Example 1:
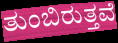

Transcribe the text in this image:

ತುಂಬಿರುತ್ತವೆ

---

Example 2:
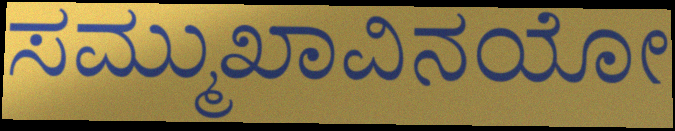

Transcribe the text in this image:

ಸಮ್ಮುಖಾವಿನಯೋ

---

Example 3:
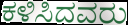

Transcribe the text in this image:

ಕಳಿಸಿದವರು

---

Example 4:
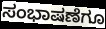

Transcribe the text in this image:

ಸಂಭಾಷಣೆಗೂ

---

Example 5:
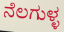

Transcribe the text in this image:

ನೆಲಗುಳ್ಳ